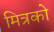
मित्रको